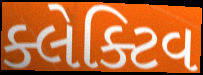
ક્લેક્ટિવ